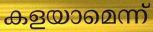
കളയാമെന്ന്